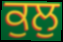
ਕੁਲੁ